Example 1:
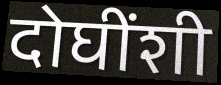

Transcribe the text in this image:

दोघींशी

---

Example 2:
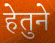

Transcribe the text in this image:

हेतुने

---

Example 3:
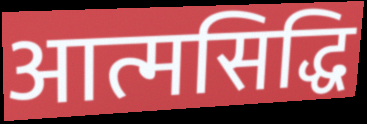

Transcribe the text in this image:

आत्मसिद्धि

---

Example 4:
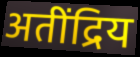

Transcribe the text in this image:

अतींद्रिय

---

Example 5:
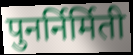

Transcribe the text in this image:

पुनर्निर्मिती